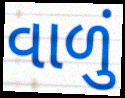
વાળું